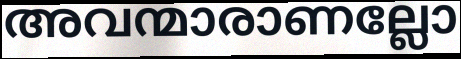
അവന്മാരാണല്ലോ